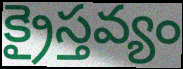
క్రైస్తవ్యం